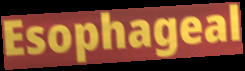
Esophageal